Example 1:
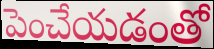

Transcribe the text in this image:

పెంచేయడంతో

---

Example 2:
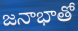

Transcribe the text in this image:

జనాభాతో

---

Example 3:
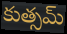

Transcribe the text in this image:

కుత్సమ్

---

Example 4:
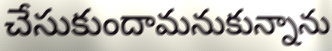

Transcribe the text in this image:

చేసుకుందామనుకున్నాను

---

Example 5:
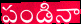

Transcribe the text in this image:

పండినా